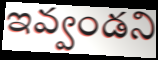
ఇవ్వండని